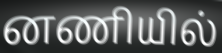
னணியில்